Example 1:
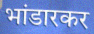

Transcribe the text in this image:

भांडारकर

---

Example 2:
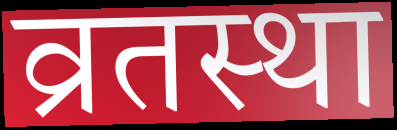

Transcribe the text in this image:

व्रतस्था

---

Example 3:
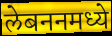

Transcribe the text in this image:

लेबननमध्ये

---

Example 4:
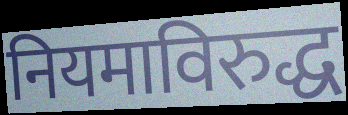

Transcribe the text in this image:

नियमाविरुद्ध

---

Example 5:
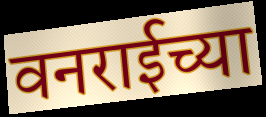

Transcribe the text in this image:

वनराईच्या